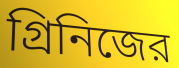
গ্রিনিজের